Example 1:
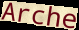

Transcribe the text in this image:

Arche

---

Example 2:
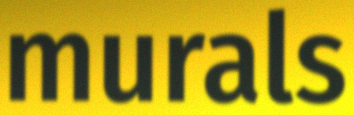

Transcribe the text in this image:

murals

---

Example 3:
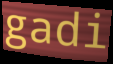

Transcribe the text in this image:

gadi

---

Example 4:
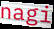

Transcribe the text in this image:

nagi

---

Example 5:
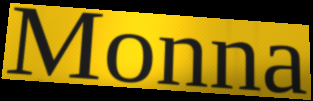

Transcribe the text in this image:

Monna